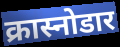
क्रास्नोडार